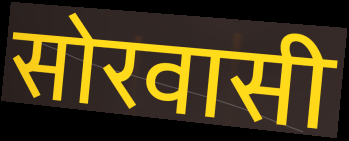
सोरवासी